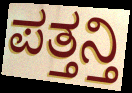
ಪತ್ತನ್ತಿ